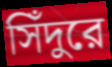
সিঁদুরে